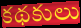
కథకులు